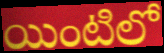
యింటిలో